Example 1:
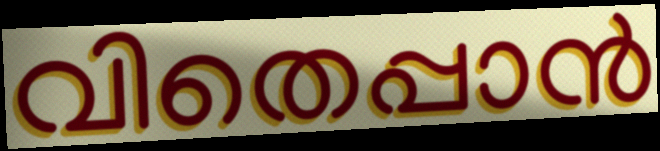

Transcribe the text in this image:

വിതെപ്പാൻ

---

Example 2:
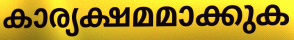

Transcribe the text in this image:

കാര്യക്ഷമമാക്കുക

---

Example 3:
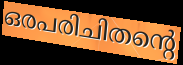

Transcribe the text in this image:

ഒരപരിചിതന്റെ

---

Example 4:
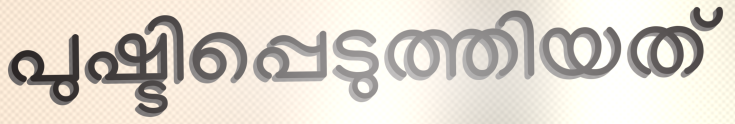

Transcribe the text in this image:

പുഷ്ടിപ്പെടുത്തിയത്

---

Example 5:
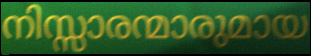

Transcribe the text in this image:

നിസ്സാരന്മാരുമായ